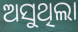
ଅସୁଥିଲା